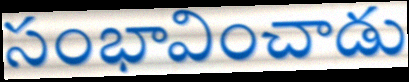
సంభావించాడు